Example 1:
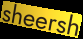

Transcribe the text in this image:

sheersh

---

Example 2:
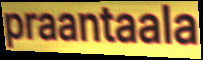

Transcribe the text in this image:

praantaala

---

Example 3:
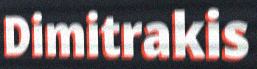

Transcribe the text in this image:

Dimitrakis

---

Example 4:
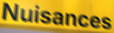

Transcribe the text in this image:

Nuisances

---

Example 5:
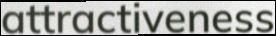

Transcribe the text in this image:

attractiveness